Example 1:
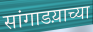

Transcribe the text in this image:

सांगाडय़ाच्या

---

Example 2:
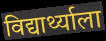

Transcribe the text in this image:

विद्यार्थ्याला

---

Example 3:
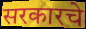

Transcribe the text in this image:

सरकारचे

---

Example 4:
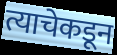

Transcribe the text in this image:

त्याचेकडून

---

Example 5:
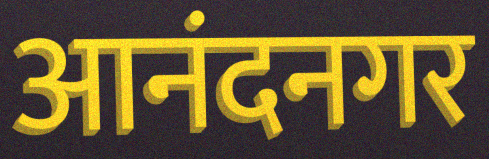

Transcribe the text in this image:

आनंदनगर